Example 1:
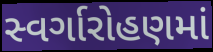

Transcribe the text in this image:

સ્વર્ગારોહણમાં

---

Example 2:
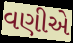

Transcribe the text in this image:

વણીએ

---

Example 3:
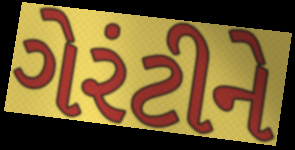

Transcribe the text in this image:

ગેરંટીને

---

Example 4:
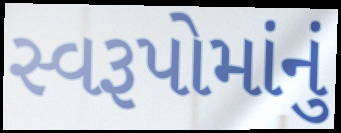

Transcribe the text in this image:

સ્વરૂપોમાંનું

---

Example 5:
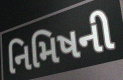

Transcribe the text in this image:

નિમિષની